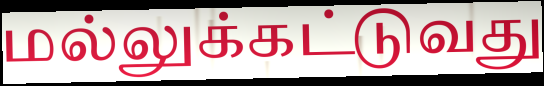
மல்லுக்கட்டுவது